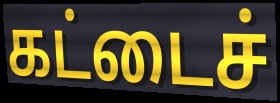
கட்டைச்